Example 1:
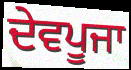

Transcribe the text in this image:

ਦੇਵਪੂਜਾ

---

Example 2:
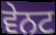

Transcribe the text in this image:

ਵੇਨਟ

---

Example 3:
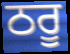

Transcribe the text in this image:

ਠਰੂ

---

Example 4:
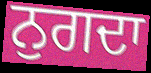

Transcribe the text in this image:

ਨੁਗਦਾ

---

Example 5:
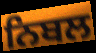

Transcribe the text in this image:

ਨਿਬਲ